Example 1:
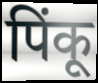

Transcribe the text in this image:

पिंकू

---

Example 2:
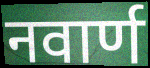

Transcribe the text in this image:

नवार्ण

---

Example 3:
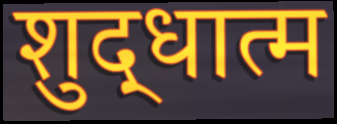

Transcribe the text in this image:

शुद्धात्म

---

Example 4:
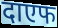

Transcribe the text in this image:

दाएफ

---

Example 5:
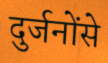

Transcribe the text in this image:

दुर्जनोंसे